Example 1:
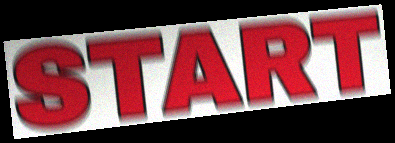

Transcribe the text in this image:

START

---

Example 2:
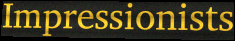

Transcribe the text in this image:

Impressionists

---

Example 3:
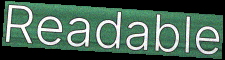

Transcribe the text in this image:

Readable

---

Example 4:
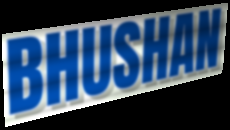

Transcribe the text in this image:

BHUSHAN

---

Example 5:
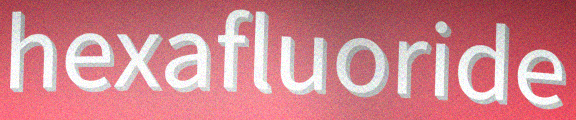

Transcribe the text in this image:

hexafluoride